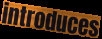
introduces